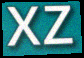
xz